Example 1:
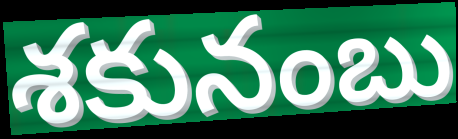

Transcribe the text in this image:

శకునంబు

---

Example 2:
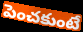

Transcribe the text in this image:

పెంచకుంటే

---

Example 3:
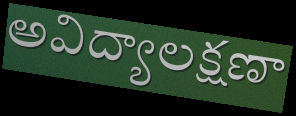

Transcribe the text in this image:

అవిద్యాలక్షణా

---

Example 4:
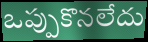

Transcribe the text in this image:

ఒప్పుకొనలేదు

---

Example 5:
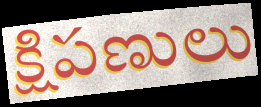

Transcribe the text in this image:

క్షిపణులు